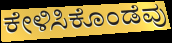
ಕೇಳಿಸಿಕೊಂಡೆವು